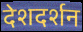
देशदर्शन